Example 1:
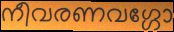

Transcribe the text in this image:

നീവരണവഗ്ഗോ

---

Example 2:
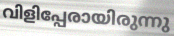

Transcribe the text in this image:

വിളിപ്പേരായിരുന്നു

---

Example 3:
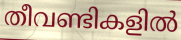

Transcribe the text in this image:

തീവണ്ടികളിൽ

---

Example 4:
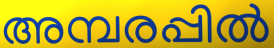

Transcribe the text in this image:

അമ്പരപ്പിൽ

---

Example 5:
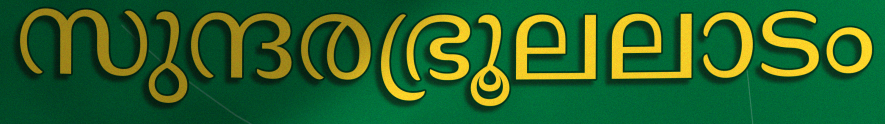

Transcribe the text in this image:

സുന്ദരഭ്രൂലലാടം